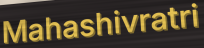
Mahashivratri